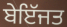
ਬੇਇੱਜਤ